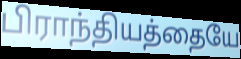
பிராந்தியத்தையே